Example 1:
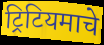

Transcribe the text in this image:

ट्रिटियमाचे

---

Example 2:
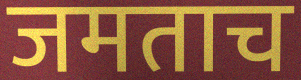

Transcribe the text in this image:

जमताच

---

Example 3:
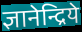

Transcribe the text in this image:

ज्ञानेन्द्रिये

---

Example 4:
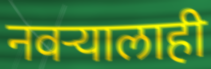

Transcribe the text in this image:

नवऱ्यालाही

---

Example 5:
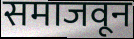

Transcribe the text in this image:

समाजवून